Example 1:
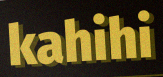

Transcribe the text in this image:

kahihi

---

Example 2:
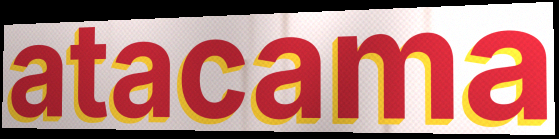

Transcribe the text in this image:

atacama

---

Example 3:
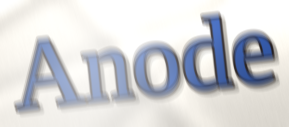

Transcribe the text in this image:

Anode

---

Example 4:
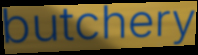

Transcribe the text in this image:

butchery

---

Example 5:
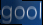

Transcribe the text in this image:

gool